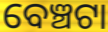
ବେଞ୍ଚଟା